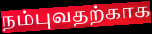
நம்புவதற்காக